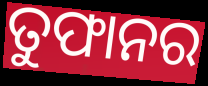
ତୁଫାନର